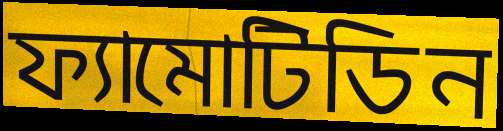
ফ্যামোটিডিন